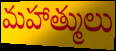
మహాత్ములు